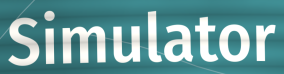
Simulator